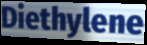
Diethylene